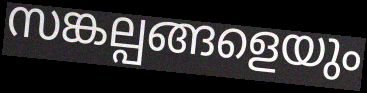
സങ്കല്പങ്ങളെയും